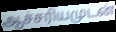
ஆச்சரியமுடன்